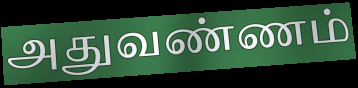
அதுவண்ணம்